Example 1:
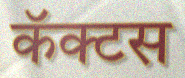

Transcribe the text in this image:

कॅक्टस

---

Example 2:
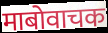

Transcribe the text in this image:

माबोवाचक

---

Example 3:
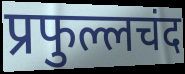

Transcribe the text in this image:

प्रफुल्लचंद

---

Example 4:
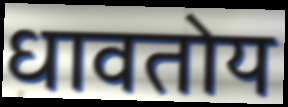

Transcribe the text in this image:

धावतोय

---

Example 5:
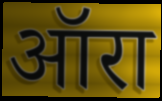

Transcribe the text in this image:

ऑरा